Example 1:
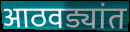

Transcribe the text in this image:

आठवड्यांत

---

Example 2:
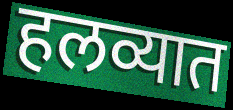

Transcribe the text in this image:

हलव्यात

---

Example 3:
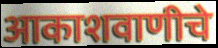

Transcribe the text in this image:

आकाशवाणीचे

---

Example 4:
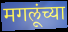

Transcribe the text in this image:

मगलूंच्या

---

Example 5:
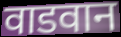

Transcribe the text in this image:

वाडवान